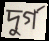
দুর্গ